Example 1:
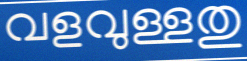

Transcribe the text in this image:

വളവുള്ളതു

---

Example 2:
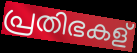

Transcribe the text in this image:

പ്രതിഭകള്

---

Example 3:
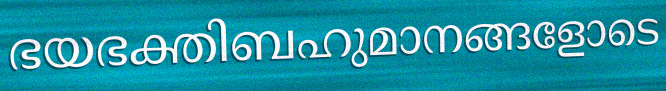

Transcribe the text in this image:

ഭയഭക്തിബഹുമാനങ്ങളോടെ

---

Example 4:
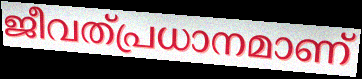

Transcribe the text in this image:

ജീവത്പ്രധാനമാണ്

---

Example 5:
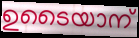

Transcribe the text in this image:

ഉടൈയാന്